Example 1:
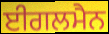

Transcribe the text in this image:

ਈਗਲਮੈਨ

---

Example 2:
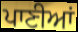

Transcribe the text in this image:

ਪਾਣੀਆਂ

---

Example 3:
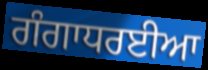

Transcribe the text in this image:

ਗੰਗਾਧਰਈਆ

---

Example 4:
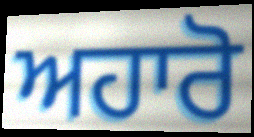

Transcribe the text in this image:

ਅਹਾਰੋ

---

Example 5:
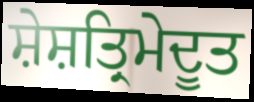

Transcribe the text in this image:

ਸ਼ੇਸ਼ਤ੍ਰਿਮੇਦੂਤ